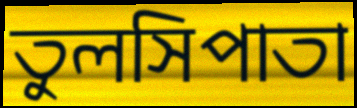
তুলসিপাতা